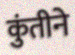
कुंतीने